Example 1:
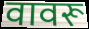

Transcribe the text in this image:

वावरू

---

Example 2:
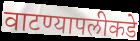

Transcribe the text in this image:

वाटण्यापलीकडे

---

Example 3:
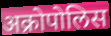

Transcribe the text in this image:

अक्रोपोलिस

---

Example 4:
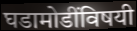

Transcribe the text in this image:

घडामोडींविषयी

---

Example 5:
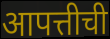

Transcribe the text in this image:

आपत्तीची